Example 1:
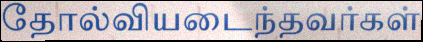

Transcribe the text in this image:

தோல்வியடைந்தவர்கள்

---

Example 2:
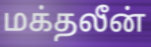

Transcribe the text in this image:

மக்தலீன்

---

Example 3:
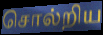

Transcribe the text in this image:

சொல்றிய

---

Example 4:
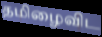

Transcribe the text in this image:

தமிழைவிட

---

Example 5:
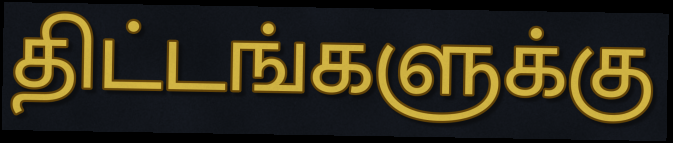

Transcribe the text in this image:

திட்டங்களுக்கு